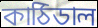
কাঠিডাল